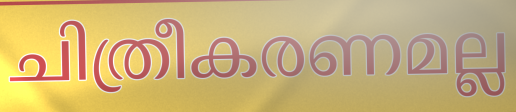
ചിത്രീകരണമല്ല